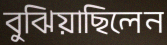
বুঝিয়াছিলেন